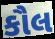
કૌલ